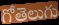
గోతెలుగు